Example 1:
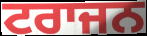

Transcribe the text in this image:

ਟਰਾਜਨ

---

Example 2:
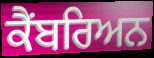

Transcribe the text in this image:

ਕੈਂਬਰਿਅਨ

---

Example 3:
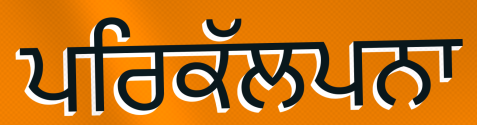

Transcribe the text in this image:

ਪਰਿਕੱਲਪਨਾ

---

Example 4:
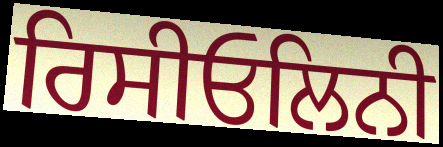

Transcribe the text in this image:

ਰਿਸੀਓਲਿਨੀ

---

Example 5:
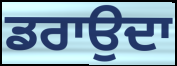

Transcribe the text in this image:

ਡਰਾਉਦਾ